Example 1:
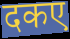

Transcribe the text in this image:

दकए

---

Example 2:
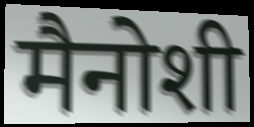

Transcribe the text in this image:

मैनोशी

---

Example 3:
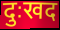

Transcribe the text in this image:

दुःखद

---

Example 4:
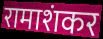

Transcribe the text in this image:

रामाशंकर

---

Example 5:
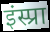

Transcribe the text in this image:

इंस्प्रा